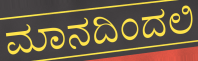
ಮಾನದಿಂದಲಿ